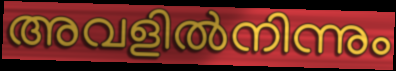
അവളിൽനിന്നും